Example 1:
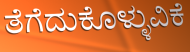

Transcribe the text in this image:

ತೆಗೆದುಕೊಳ್ಳುವಿಕೆ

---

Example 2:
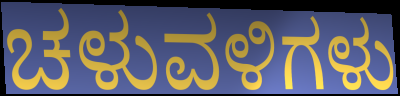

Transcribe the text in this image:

ಚಳುವಳಿಗಳು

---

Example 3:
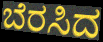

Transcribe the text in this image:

ಬೆರಸಿದ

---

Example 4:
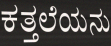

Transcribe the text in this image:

ಕತ್ತಲೆಯನು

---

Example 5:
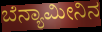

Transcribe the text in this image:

ಬೆನ್ಯಾಮೀನಿನ